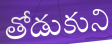
తోడుకుని